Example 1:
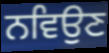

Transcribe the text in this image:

ਨਵਿਉਣ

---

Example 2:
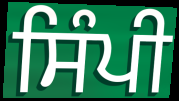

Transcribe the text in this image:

ਸਿੰਪੀ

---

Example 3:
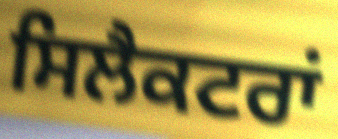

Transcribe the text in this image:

ਸਿਲੈਕਟਰਾਂ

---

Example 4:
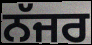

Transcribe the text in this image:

ਨੱਜਰ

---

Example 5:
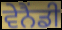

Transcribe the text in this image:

ਵੇਨੈਂਡੀ